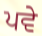
ਪਵੇ